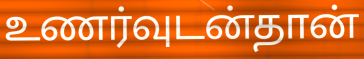
உணர்வுடன்தான்